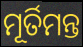
ମୂର୍ତିମନ୍ତ